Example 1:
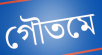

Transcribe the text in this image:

গৌতমে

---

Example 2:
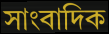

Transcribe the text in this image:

সাংবাদিক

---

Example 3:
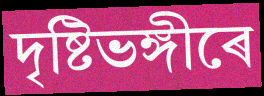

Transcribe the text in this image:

দৃষ্টিভঙ্গীৰে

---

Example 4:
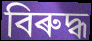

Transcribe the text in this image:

বিৰুদ্ধ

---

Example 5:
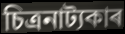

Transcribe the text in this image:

চিত্ৰনাট্যকাৰ